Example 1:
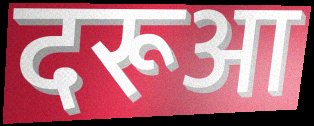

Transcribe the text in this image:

दरूआ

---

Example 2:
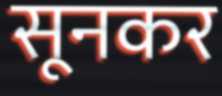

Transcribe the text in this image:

सूनकर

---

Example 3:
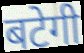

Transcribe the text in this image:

बटेगी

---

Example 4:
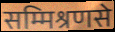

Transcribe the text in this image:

सम्मिश्रणसे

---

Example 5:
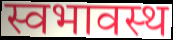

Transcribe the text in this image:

स्वभावस्थ